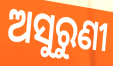
ଅସୁରୁଣୀ